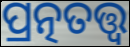
ପ୍ରତ୍ନତତ୍ତ୍ୱ